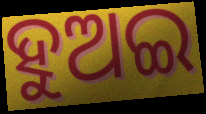
ହୁଅଇ